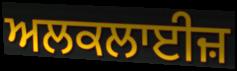
ਅਲਕਲਾਈਜ਼